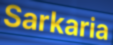
Sarkaria